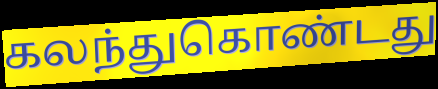
கலந்துகொண்டது